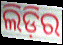
ଲିଡ଼ିର